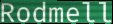
Rodmell